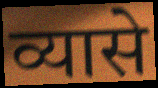
व्यासे